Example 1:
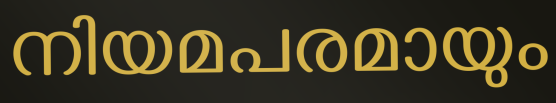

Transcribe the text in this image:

നിയമപരമായും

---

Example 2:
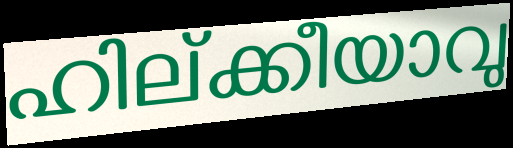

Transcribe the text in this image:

ഹില്ക്കീയാവു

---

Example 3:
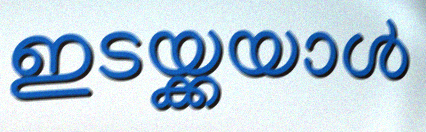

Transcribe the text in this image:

ഇടയ്ക്കയാൾ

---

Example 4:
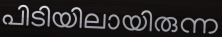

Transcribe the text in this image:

പിടിയിലായിരുന്ന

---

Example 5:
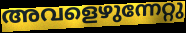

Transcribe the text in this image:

അവളെഴുന്നേറ്റു